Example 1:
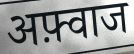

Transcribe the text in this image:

अफ़्वाज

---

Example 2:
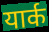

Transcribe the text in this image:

यार्क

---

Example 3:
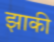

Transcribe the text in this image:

झाकी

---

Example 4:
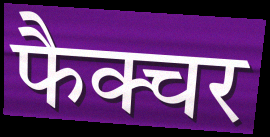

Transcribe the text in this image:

फैक्चर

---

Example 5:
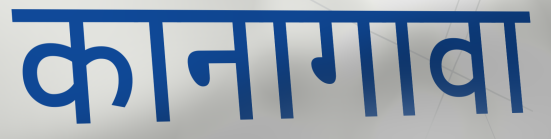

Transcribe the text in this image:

कानागावा